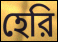
হেরি